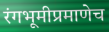
रंगभूमीप्रमाणेच